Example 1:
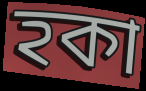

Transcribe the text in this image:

হকা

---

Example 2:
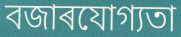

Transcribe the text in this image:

বজাৰযোগ্যতা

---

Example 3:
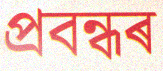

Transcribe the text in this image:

প্ৰবন্ধৰ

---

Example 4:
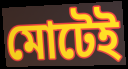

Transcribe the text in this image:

মোটেই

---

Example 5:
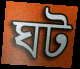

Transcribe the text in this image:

ঘট